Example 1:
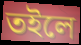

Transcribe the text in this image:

তইলে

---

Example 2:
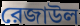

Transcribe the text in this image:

রেজাউল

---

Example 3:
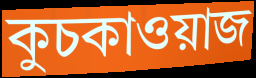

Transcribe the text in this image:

কুচকাওয়াজ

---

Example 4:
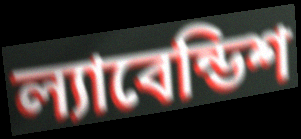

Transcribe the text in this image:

ল্যাবেন্ডিশ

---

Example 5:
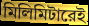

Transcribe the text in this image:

মিলিমিটারেই